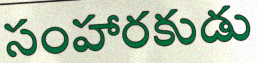
సంహారకుడు